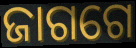
ଜାଗଗେ